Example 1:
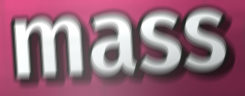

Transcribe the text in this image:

mass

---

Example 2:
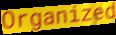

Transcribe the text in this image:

Organized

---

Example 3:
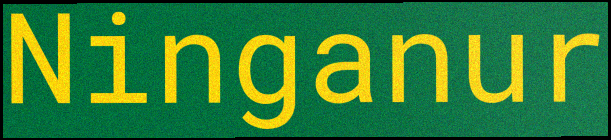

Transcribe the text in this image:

Ninganur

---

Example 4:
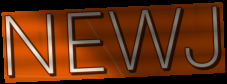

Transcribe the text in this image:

NEWJ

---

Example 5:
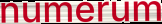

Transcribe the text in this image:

numerum